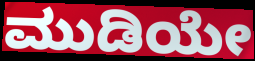
ಮುಡಿಯೇ